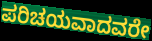
ಪರಿಚಯವಾದವರೇ